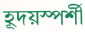
হূদয়স্পর্শী